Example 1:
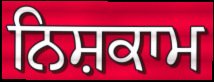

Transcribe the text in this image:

ਨਿਸ਼ਕਾਮ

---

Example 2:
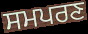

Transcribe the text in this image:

ਸਮਪਰਣ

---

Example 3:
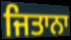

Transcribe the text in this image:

ਜਿਤਾਨਾ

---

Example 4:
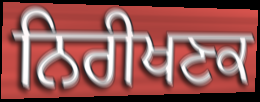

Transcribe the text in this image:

ਨਿਰੀਖਣਕ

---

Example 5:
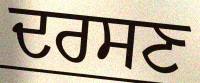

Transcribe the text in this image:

ਦਰਸਣ